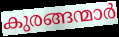
കുരങ്ങന്മാർ